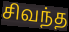
சிவந்த